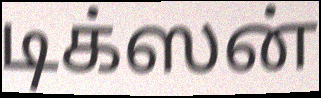
டிக்ஸன்